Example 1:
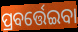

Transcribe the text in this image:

ପ୍ରବର୍ତ୍ତେଇବା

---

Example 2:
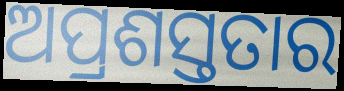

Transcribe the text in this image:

ଅପ୍ରଶସ୍ତତାର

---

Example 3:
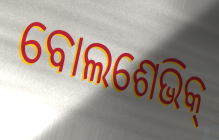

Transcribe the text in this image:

ବୋଲଶେଭିକ୍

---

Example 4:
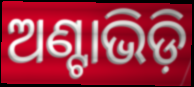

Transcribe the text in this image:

ଅଣ୍ଟାଭିଡ଼ି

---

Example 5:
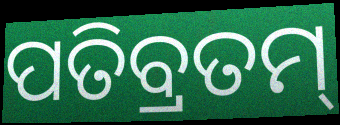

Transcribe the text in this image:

ପତିବ୍ରତମ୍